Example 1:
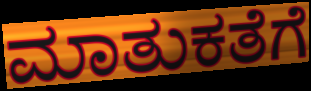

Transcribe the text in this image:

ಮಾತುಕತೆಗೆ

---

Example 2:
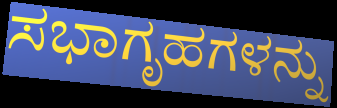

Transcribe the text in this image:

ಸಭಾಗೃಹಗಳನ್ನು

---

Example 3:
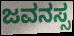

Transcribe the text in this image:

ಜವನಸ್ಸ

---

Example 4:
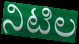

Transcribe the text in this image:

ನಿಟಿಲ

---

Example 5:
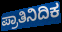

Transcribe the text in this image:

ಪ್ರಾತಿನಿದಿಕ